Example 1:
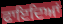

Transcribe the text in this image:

ਫਾਇਦਿਆਂ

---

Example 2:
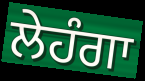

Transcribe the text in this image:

ਲੇਹੰਗਾ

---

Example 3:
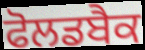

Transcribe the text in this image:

ਫੋਲਡਬੈਕ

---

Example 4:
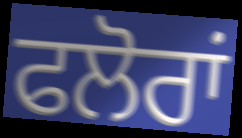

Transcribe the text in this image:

ਫਲੋਰਾਂ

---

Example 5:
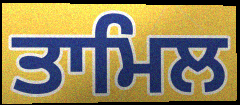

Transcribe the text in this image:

ਤਾਮਿਲ